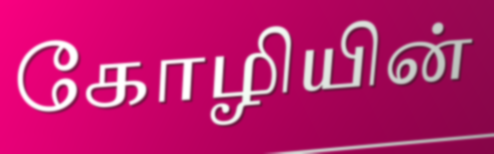
கோழியின்